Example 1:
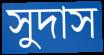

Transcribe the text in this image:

সুদাস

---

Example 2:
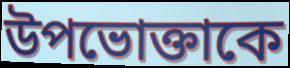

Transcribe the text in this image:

উপভোক্তাকে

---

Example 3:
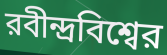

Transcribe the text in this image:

রবীন্দ্রবিশ্বের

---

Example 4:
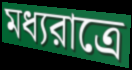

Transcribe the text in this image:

মধ্যরাত্রে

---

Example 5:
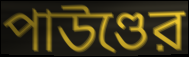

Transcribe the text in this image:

পাউণ্ডের